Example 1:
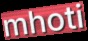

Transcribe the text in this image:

mhoti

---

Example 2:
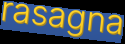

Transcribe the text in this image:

rasagna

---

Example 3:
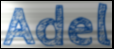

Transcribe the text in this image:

Adel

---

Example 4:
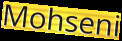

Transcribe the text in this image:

Mohseni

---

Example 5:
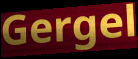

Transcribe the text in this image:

Gergel